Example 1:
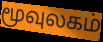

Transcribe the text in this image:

மூவுலகம்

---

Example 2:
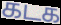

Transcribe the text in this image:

கடக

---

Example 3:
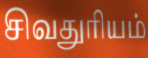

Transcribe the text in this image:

சிவதுரியம்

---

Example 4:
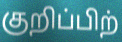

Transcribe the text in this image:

குறிப்பிற்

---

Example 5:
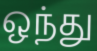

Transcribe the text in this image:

ஒந்து